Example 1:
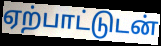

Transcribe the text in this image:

ஏற்பாட்டுடன்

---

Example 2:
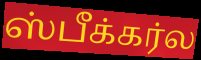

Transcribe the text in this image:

ஸ்பீக்கர்ல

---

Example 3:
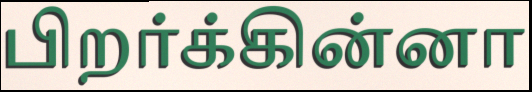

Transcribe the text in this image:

பிறர்க்கின்னா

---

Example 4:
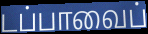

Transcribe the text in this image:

டப்பாவைப்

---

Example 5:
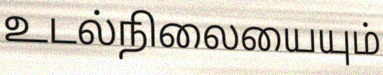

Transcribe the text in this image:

உடல்நிலையையும்